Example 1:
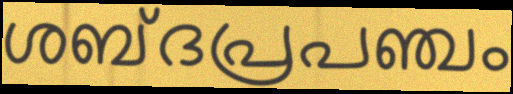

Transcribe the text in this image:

ശബ്ദപ്രപഞ്ചം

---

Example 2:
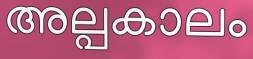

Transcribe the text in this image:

അല്പകാലം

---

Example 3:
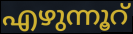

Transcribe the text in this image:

എഴുന്നൂറ്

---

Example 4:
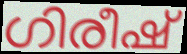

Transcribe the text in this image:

ഗിരീഷ്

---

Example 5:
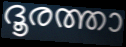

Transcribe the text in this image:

ദൂരത്താ